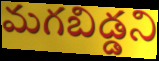
మగబిడ్డని